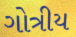
ગોત્રીય